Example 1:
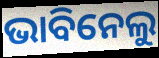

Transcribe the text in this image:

ଭାବିନେଲୁ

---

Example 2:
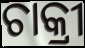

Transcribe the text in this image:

ଚାକ୍ରୀ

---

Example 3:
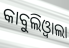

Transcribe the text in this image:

କାବୁଲିଓ୍ୱାଲା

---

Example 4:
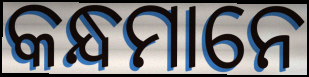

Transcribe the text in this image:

କନ୍ଧମାନେ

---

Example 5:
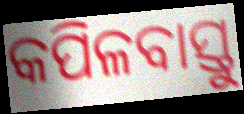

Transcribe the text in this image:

କପିଳବାସ୍ତୁ